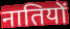
नातियों